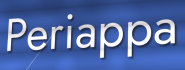
Periappa